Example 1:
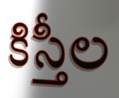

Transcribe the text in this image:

కిస్తీల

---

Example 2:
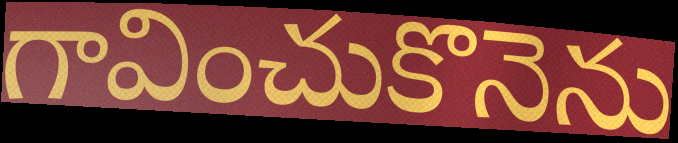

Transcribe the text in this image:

గావించుకొనెను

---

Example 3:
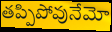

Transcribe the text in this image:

తప్పిపోవునేమో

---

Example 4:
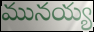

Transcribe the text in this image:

మునయ్య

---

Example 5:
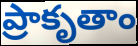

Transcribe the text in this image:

ప్రాకృతాం